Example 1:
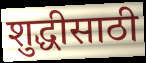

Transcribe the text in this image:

शुद्धीसाठी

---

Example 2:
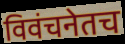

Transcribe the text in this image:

विवंचनेतच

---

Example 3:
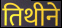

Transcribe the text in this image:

तिथीने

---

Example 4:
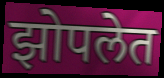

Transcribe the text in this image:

झोपलेत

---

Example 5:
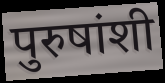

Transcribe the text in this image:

पुरुषांशी